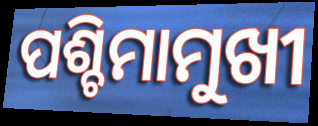
ପଶ୍ଚିମାମୁଖୀ